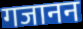
गजानन